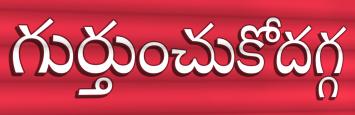
గుర్తుంచుకోదగ్గ